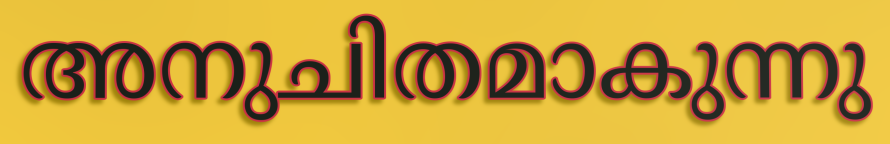
അനുചിതമാകുന്നു